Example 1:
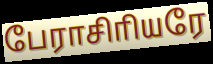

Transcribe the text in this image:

பேராசிரியரே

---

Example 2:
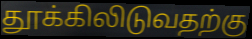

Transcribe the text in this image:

தூக்கிலிடுவதற்கு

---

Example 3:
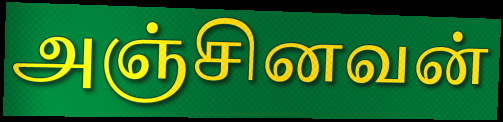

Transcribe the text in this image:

அஞ்சினவன்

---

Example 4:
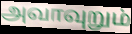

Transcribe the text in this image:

அவாவுறும்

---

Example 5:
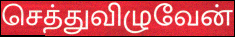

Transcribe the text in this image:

செத்துவிழுவேன்